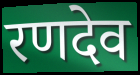
रणदेव